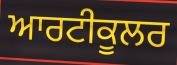
ਆਰਟੀਕੂਲਰ